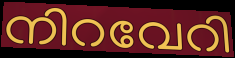
നിറവേറി